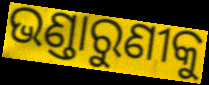
ଭଣ୍ଡାରୁଣୀକୁ